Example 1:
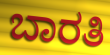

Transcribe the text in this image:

ಬಾರತಿ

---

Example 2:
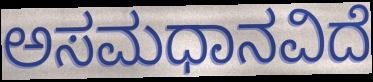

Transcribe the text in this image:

ಅಸಮಧಾನವಿದೆ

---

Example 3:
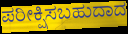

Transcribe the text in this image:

ಪರೀಕ್ಷಿಸಬಹುದಾದ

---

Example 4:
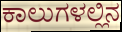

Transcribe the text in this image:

ಕಾಲುಗಳಲ್ಲಿನ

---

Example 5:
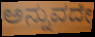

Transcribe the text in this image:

ಅನ್ನುವದೇ